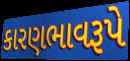
કારણભાવરૂપે